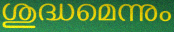
ശുദ്ധമെന്നും